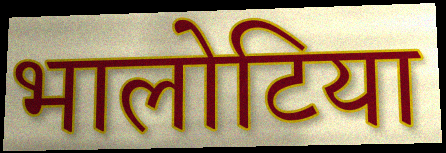
भालोटिया